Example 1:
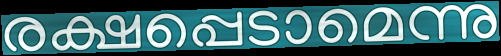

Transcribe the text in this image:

രക്ഷപ്പെടാമെന്നു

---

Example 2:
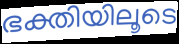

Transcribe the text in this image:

ഭക്തിയിലൂടെ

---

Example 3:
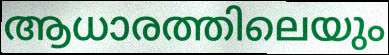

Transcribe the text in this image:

ആധാരത്തിലെയും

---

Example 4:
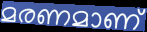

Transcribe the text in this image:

മരണമാണ്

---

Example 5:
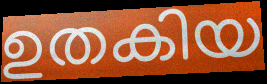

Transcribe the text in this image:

ഉതകിയ